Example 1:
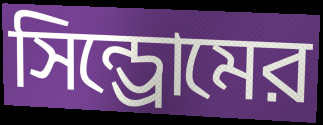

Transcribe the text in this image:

সিন্ড্রোমের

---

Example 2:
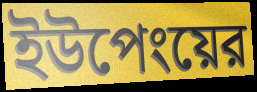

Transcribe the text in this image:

ইউপেংয়ের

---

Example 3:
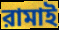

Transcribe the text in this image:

রামাই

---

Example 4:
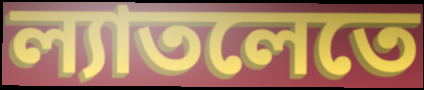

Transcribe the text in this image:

ল্যাতলেতে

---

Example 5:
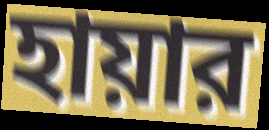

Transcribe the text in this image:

হায়ার